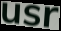
usr